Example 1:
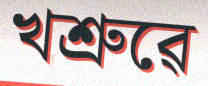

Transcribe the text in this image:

খশ্ৰুৱে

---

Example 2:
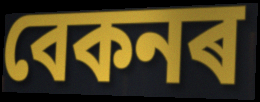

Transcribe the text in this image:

বেকনৰ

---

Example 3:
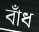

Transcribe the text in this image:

বাঁধ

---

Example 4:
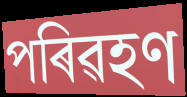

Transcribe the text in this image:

পৰিৱহণ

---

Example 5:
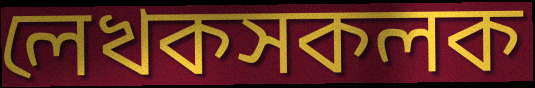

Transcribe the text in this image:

লেখকসকলক